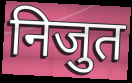
निजुत